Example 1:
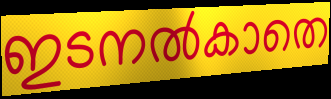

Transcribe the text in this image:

ഇടനൽകാതെ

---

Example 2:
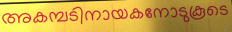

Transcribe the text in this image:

അകമ്പടിനായകനോടുകൂടെ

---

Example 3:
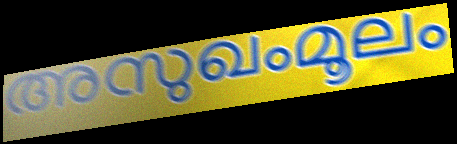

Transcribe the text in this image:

അസുഖംമൂലം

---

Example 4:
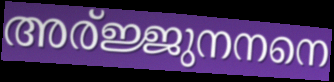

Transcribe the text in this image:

അര്ജ്ജുനനനെ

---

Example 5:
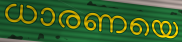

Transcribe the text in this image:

ധാരണയെ